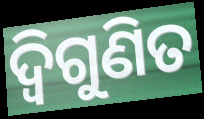
ଦ୍ୱିଗୁଣିତ